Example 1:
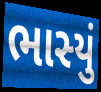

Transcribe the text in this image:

ભાસ્યું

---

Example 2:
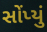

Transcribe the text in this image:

સોંપ્યું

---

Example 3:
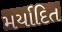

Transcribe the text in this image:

મર્યાદિત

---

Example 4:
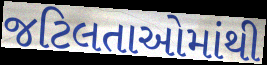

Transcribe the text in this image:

જટિલતાઓમાંથી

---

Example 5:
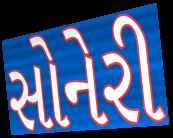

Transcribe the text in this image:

સોનેરી